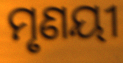
ମୃଣୟୀ